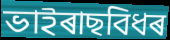
ভাইৰাছবিধৰ